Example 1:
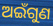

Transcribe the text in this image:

ଅଇଁଗୁଣ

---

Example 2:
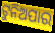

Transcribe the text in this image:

ଟୁନିଅପାର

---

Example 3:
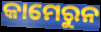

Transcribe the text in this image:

କାମେରୁନ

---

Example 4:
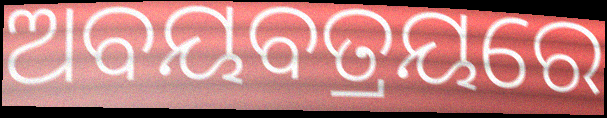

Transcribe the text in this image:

ଅବୟବତ୍ରୟରେ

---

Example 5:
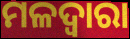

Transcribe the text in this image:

ମଳଦ୍ଵାରା